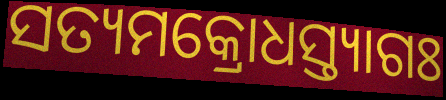
ସତ୍ୟମକ୍ରୋଧସ୍ତ୍ୟାଗଃ